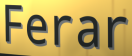
Ferar